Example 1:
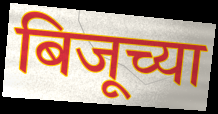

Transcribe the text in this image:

बिजूच्या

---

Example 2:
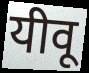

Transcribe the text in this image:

यीवू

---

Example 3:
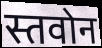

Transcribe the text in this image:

स्तवोन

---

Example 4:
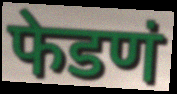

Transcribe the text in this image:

फेडणं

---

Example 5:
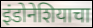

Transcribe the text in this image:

इंडोनेशियाचा